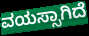
ವಯಸ್ಸಾಗಿದೆ